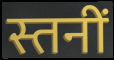
स्तनीं